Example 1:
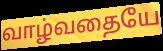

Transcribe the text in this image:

வாழ்வதையே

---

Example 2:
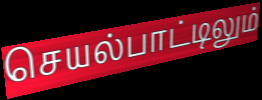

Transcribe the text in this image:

செயல்பாட்டிலும்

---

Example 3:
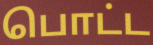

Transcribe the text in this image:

பொட்ட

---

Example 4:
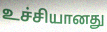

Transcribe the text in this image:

உச்சியானது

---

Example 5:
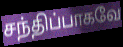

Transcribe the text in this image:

சந்திப்பாகவே